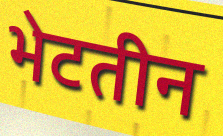
भेटतीन